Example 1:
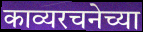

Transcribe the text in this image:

काव्यरचनेच्या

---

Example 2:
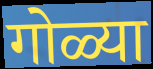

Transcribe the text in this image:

गोळ्या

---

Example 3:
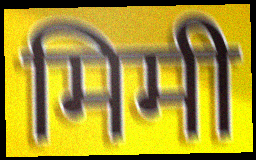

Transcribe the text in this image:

मिमी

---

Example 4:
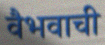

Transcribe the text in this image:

वैभवाची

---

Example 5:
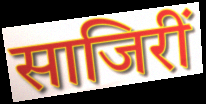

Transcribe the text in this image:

साजिरीं